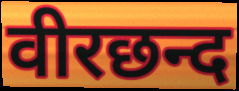
वीरछन्द